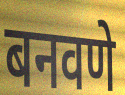
बनवणे